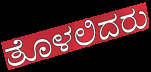
ತೊಳಲಿದರು